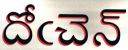
దోఁచెన్